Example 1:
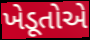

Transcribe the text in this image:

ખેડૂતોએ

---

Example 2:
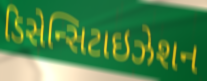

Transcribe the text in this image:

ડિસેન્સિટાઇઝેશન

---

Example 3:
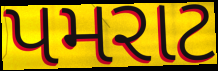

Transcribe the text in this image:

પમરાટ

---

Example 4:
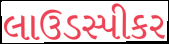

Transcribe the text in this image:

લાઉડસ્પીકર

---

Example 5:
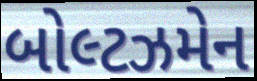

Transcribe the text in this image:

બોલ્ટઝમેન